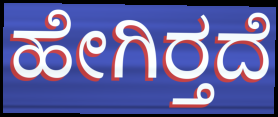
ಹೇಗಿರ್‍ತದೆ